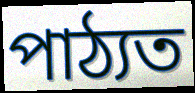
পাঠ্যত